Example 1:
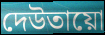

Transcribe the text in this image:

দেউতায়ো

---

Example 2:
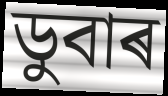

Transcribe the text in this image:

ডুবাৰ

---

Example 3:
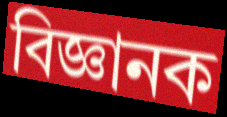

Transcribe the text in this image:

বিজ্ঞানক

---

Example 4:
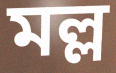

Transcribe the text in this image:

মল্ল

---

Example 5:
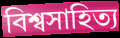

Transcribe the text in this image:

বিশ্বসাহিত্য়